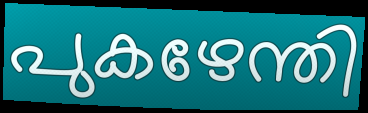
പുകഴേന്തി